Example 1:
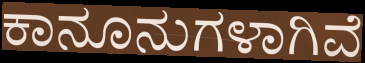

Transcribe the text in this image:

ಕಾನೂನುಗಳಾಗಿವೆ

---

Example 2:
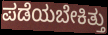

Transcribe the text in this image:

ಪಡೆಯಬೇಕಿತ್ತು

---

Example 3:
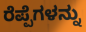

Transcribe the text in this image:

ರೆಪ್ಪೆಗಳನ್ನು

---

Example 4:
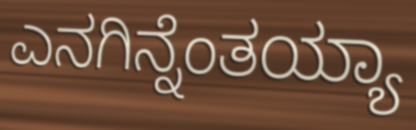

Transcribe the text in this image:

ಎನಗಿನ್ನೆಂತಯ್ಯಾ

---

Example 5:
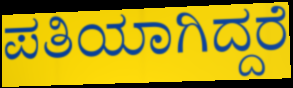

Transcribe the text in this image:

ಪತಿಯಾಗಿದ್ದರೆ